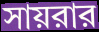
সায়রার